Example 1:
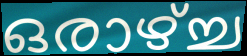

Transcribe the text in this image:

ഒരാഴ്ച്ച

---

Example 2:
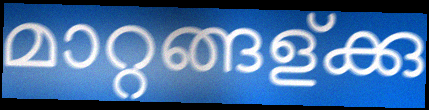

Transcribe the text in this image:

മാറ്റങ്ങള്ക്കു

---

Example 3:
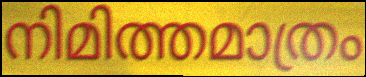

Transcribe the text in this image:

നിമിത്തമാത്രം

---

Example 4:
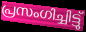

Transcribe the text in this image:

പ്രസംഗിച്ചിട്ടു്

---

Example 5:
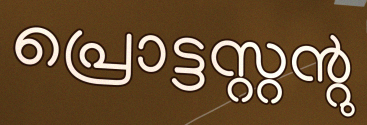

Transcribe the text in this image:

പ്രൊട്ടസ്റ്റന്റു